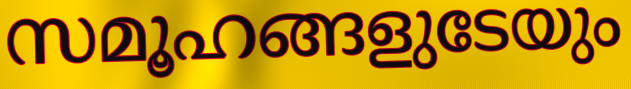
സമൂഹങ്ങളുടേയും